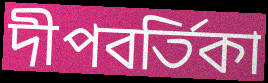
দীপবর্তিকা